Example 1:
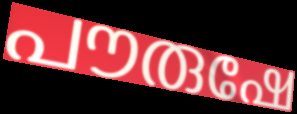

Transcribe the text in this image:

പൗരുഷേ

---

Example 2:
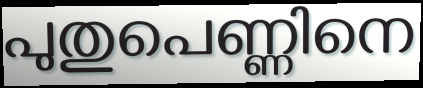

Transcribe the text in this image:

പുതുപെണ്ണിനെ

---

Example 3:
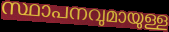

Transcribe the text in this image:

സ്ഥാപനവുമായുള്ള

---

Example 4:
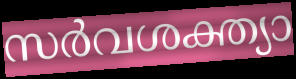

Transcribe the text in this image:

സർവശക്ത്യാ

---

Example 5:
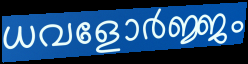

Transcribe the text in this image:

ധവളോർജ്ജം